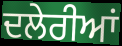
ਦਲੇਰੀਆਂ